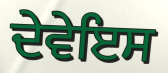
ਦੇਵੇਇਸ